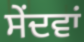
ਸੇਂਦਵਾਂ